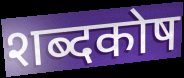
शब्दकोष